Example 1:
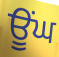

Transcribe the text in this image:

ਊਂਘ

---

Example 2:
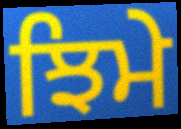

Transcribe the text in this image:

ਝਿਮੇ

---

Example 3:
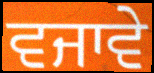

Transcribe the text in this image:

ਵਜਾਵੇ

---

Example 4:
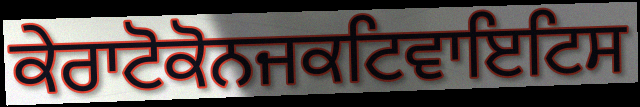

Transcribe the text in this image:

ਕੇਰਾਟੋਕੋਨਜਕਟਿਵਾਇਟਿਸ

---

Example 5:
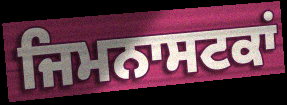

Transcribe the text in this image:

ਜਿਮਨਾਸਟਕਾਂ